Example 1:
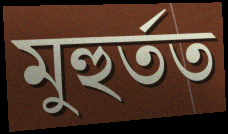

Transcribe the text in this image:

মুহুৰ্তত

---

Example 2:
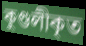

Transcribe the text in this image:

কুণ্ডলীকৃত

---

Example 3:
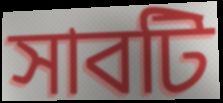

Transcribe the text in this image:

সাবটি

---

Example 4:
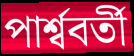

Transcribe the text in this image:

পাৰ্শ্ববৰ্তী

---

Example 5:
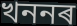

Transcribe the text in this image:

খননৰ